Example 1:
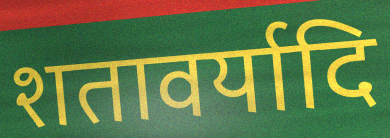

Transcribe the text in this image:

शतावर्यादि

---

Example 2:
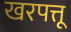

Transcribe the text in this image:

खरपत्तू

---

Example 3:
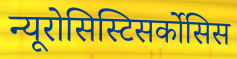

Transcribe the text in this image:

न्यूरोसिस्टिसर्कोसिस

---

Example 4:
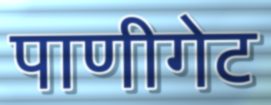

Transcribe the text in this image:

पाणीगेट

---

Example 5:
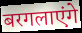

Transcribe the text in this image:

बरगलाएंगे